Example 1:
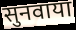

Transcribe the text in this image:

सुनवाया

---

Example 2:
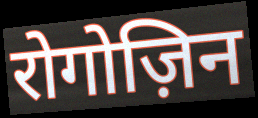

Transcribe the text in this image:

रोगोज़िन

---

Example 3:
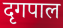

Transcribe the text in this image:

दृगपाल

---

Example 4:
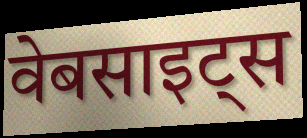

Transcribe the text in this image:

वेबसाइट्स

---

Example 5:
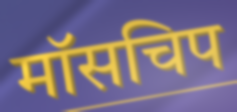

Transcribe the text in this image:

मॉसचिप